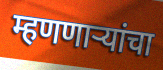
म्हणणाऱ्यांचा